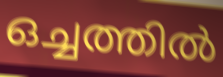
ഒച്ചത്തിൽ